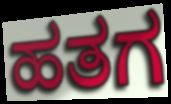
ಹತಗ